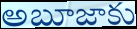
అబూజాకు